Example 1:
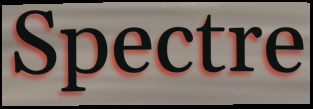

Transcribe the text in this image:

Spectre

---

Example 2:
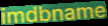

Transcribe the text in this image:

imdbname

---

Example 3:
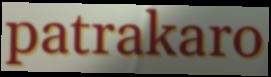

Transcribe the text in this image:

patrakaro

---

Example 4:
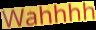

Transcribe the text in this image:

Wahhhh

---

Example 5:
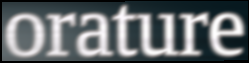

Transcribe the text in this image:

orature